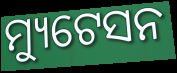
ମ୍ୟୁଟେସନ